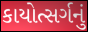
કાયોત્સર્ગનું